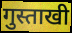
गुस्ताखी